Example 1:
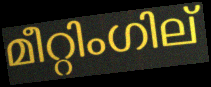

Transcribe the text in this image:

മീറ്റിംഗില്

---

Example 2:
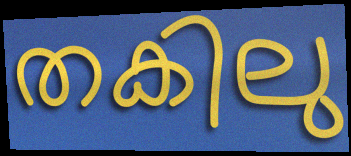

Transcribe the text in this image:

തകിലു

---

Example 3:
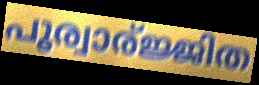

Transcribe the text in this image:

പൂര്വാര്ജ്ജിത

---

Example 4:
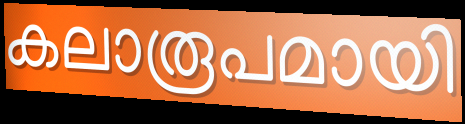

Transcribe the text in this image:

കലാരൂപമായി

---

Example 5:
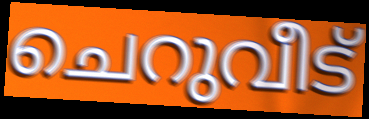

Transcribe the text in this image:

ചെറുവീട്